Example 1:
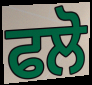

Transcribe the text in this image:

ਫਲੋ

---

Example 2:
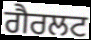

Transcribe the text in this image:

ਗੈਰਲਟ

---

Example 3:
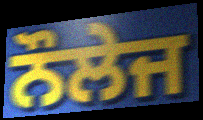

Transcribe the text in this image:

ਨੌਲੇਜ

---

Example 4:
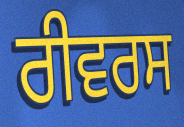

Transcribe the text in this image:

ਰੀਵਰਸ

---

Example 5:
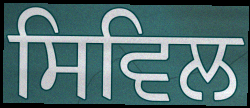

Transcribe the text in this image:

ਸਿਵਿਲ